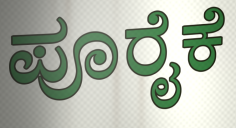
ಪೂರೈಕೆ